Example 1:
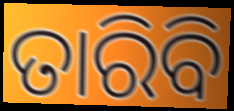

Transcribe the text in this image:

ତାରିବି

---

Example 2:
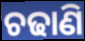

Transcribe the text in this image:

ଚଢାଣି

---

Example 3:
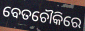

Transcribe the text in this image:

ବେତଚୌକିରେ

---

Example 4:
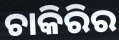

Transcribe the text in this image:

ଚାକିରିର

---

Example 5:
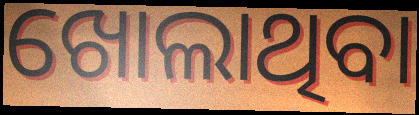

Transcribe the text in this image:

ଖୋଲାଥିବା